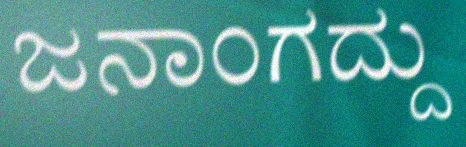
ಜನಾಂಗದ್ದು